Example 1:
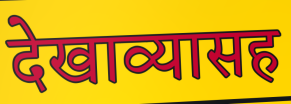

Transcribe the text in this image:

देखाव्यासह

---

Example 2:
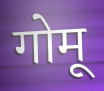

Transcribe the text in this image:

गोमू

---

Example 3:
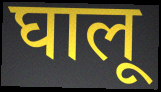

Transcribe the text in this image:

घालू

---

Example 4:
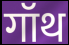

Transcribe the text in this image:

गॉथ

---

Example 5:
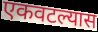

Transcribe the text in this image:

एकवटल्यास